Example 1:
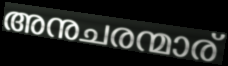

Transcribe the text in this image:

അനുചരന്മാര്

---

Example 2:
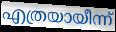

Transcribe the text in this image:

എത്രയായീന്ന്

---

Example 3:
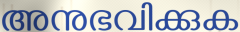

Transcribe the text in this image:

അനുഭവിക്കുക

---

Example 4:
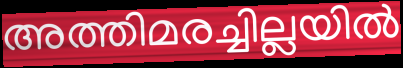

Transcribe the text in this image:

അത്തിമരച്ചില്ലയിൽ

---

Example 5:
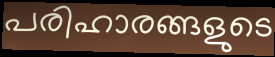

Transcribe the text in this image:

പരിഹാരങ്ങളുടെ